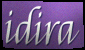
idira